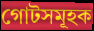
গোটসমূহক